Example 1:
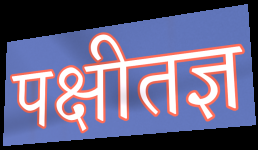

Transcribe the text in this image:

पक्षीतज्ञ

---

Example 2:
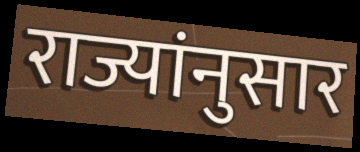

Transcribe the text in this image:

राज्यांनुसार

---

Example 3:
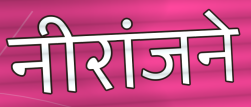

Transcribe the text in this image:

नीरांजने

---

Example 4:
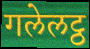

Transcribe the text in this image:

गलेलट्ठ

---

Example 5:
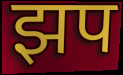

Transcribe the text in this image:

झप